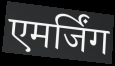
एमर्जिंग